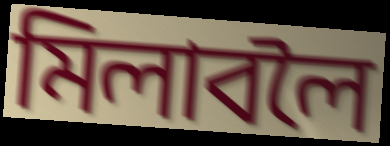
মিলাবলৈ